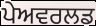
ਪੇਅਵਰਲਡ